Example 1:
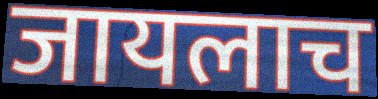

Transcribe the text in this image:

जायलाच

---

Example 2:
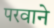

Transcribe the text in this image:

परवाने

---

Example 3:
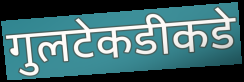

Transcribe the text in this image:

गुलटेकडीकडे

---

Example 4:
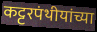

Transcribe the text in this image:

कट्टरपंथीयांच्या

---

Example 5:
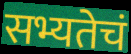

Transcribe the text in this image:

सभ्यतेचं